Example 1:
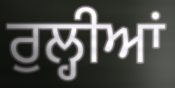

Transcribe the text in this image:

ਰੁਲ੍ਹੀਆਂ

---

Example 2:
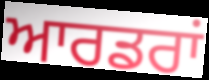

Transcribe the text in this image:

ਆਰਡਰਾਂ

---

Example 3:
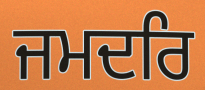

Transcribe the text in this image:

ਜਮਦਰਿ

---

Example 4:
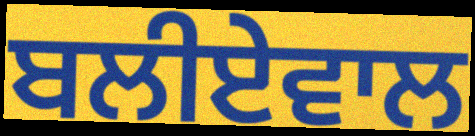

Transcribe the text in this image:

ਬਲੀਏਵਾਲ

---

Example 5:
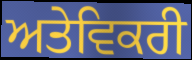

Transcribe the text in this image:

ਅਤੇਵਿਕਰੀ